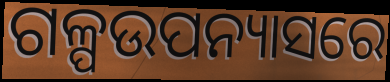
ଗଳ୍ପଉପନ୍ୟାସରେ